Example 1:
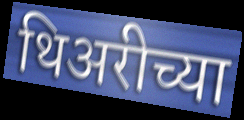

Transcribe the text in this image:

थिअरीच्या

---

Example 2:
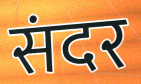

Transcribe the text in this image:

संदर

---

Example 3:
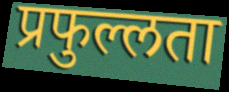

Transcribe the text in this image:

प्रफुल्लता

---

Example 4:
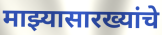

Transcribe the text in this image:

माझ्यासारख्यांचे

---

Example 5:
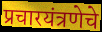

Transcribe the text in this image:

प्रचारयंत्रणेचे